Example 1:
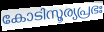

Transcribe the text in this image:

കോടിസൂര്യപ്രഭഃ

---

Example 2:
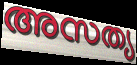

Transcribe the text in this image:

അസത്യ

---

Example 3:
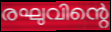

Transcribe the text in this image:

രഘുവിന്റെ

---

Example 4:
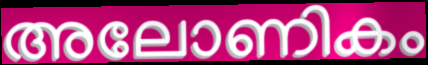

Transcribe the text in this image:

അലോണികം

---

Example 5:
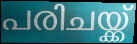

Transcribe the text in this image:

പരിചയ്ക്ക്